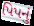
પિપનું